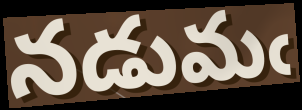
నడుమఁ